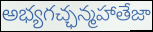
అభ్యగచ్ఛన్మహాతేజా